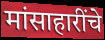
मांसाहारींचे